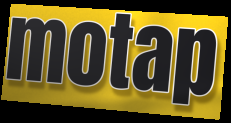
motap